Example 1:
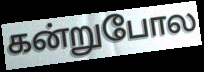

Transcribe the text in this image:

கன்றுபோல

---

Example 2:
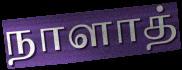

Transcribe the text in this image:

நாளாத்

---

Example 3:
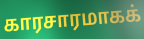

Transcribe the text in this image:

காரசாரமாகக்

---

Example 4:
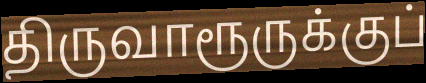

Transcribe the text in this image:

திருவாரூருக்குப்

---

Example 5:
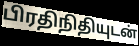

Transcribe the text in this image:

பிரதிநிதியுடன்